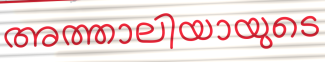
അത്താലിയായുടെ